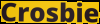
Crosbie